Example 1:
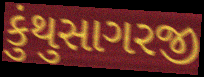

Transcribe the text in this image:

કુંથુસાગરજી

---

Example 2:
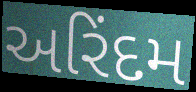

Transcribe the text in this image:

અરિંદમ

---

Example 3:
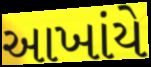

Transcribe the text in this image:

આખાંયે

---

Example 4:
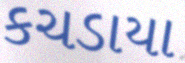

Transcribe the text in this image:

કચડાયા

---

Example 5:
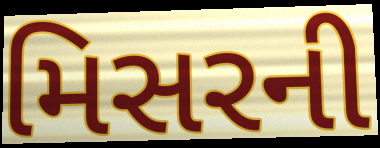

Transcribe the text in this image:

મિસરની